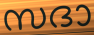
സദാ